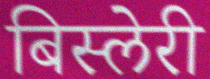
बिस्लेरी